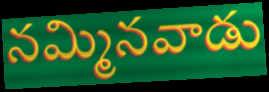
నమ్మినవాడు